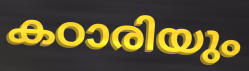
കഠാരിയും